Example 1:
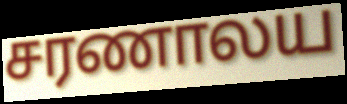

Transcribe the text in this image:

சரணாலய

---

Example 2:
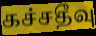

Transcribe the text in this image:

கச்சதீவு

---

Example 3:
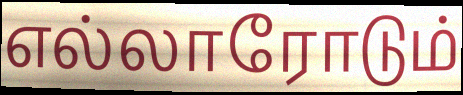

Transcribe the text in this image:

எல்லாரோடும்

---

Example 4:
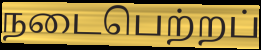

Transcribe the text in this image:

நடைபெற்றப்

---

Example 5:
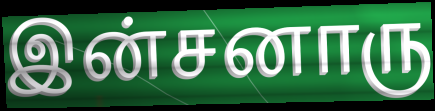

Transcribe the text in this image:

இன்சனாரு